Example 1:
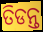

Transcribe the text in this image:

ତିଡନ୍ତ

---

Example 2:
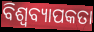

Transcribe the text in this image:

ବିଶ୍ୱବ୍ୟାପକତା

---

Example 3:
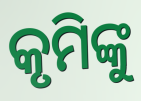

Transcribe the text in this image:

କୃମିଙ୍କୁ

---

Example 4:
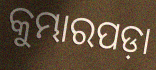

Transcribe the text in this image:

କୁମ୍ଭାରପଡ଼ା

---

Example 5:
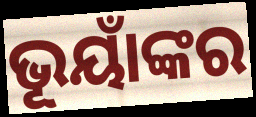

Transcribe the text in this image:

ଭୂୟାଁଙ୍କର